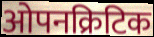
ओपनक्रिटिक